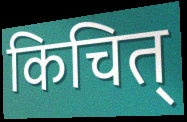
किचित्